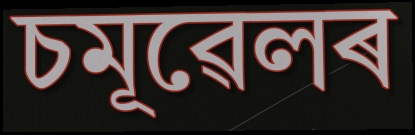
চমূৱেলৰ